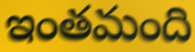
ఇంతమంది